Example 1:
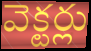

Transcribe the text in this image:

వెక్టర్లు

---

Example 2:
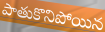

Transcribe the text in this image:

పాతుకొనిపోయిన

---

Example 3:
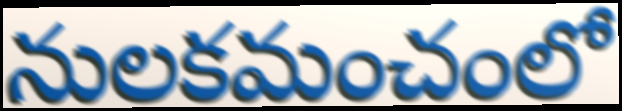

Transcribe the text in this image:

నులకమంచంలో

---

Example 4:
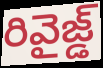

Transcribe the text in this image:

రివైజ్డ్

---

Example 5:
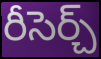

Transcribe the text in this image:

రీసెర్చ్